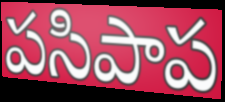
పసిపాప